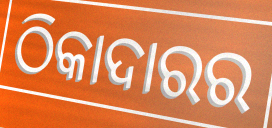
ଠିକାଦାରର